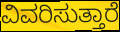
ವಿವರಿಸುತ್ತಾರೆ